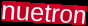
nuetron